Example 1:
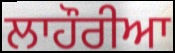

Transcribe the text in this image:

ਲਾਹੌਰੀਆ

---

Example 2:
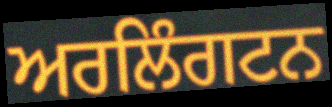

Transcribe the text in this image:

ਅਰਲਿੰਗਟਨ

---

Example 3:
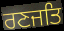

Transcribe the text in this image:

ਰਣਜਤਿ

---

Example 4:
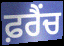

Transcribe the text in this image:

ਫ਼ਰੈਂਚ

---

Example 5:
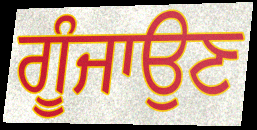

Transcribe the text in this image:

ਗੂੰਜਾਉਣ